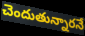
చెందుతున్నారనే